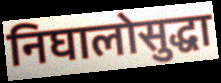
निघालोसुद्धा